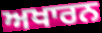
ਅਖਾਰਨ